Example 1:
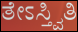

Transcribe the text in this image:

ತೇಽಸ್ತ್ವಿತಿ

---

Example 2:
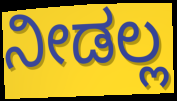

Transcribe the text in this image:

ನೀಡಲ್ಲ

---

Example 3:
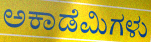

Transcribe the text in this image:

ಅಕಾಡೆಮಿಗಳು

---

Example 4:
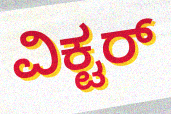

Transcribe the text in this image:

ವಿಕ್ಟರ್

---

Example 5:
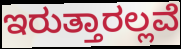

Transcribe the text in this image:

ಇರುತ್ತಾರಲ್ಲವೆ